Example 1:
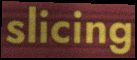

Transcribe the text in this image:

slicing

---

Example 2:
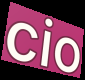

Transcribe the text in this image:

cio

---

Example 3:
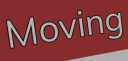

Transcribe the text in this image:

Moving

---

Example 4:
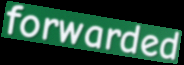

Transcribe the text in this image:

forwarded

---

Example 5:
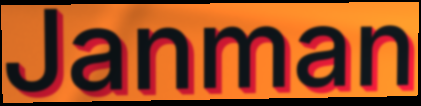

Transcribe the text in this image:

Janman